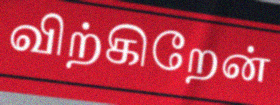
விற்கிறேன்